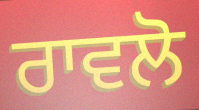
ਰਾਵਲੋ